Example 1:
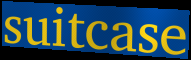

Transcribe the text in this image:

suitcase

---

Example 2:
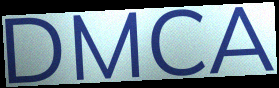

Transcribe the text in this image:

DMCA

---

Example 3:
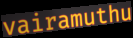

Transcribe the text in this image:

vairamuthu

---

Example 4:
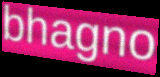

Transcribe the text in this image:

bhagno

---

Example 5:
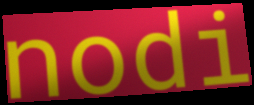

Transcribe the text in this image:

nodi